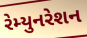
રેમ્યુનરેશન